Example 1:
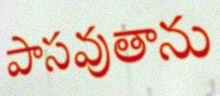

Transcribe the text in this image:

పాసవుతాను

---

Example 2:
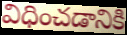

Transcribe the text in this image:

విధించడానికి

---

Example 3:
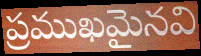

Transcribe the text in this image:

ప్రముఖమైనవి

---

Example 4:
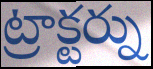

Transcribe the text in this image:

ట్రాక్టర్ను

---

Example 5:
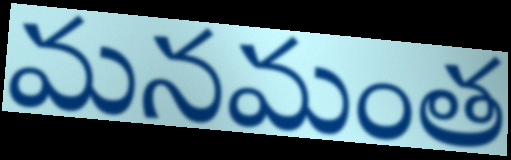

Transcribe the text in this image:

మనమంత